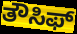
ತೌಸಿಫ್